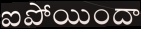
ఐపోయిందా